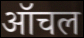
ऑचल